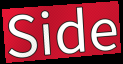
Side